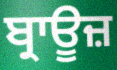
ਬ੍ਰਾਊਜ਼